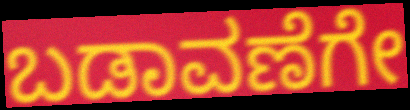
ಬಡಾವಣೆಗೇ